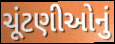
ચૂંટણીઓનું